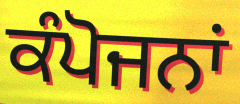
ਕੰਪੋਜਨਾਂ